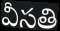
వీసతి